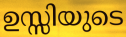
ഉസ്സിയുടെ